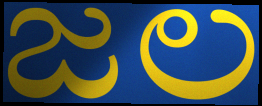
జల